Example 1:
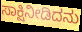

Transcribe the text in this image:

ಸಾಕ್ಷಿನೀಡಿದನು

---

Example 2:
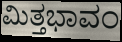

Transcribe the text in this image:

ಮಿತ್ತಭಾವಂ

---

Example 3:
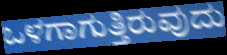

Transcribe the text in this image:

ಒಳಗಾಗುತ್ತಿರುವುದು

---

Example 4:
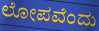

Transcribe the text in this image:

ಲೋಪವೆಂದು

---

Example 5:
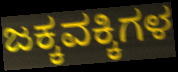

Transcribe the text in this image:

ಜಕ್ಕವಕ್ಕಿಗಳ